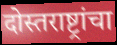
दोस्तराष्ट्रांचा